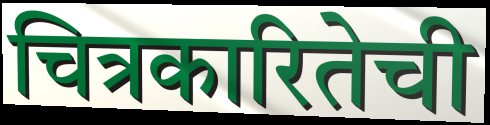
चित्रकारितेची